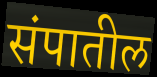
संपातील